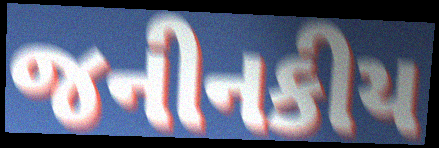
જનીનકીય